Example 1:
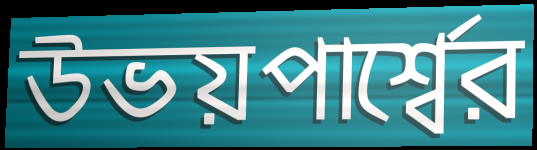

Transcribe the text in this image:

উভয়পার্শ্বের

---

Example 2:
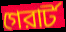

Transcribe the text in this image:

গেরার্ট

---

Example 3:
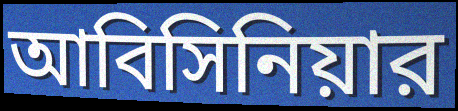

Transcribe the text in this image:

আবিসিনিয়ার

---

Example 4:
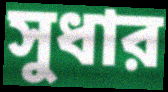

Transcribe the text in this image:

সুধার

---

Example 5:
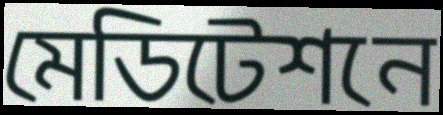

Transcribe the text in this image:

মেডিটেশনে